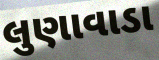
લુણાવાડા